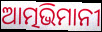
ଆତ୍ମଭିମାନୀ